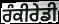
ਰੰਕੀਰੇਡੀ